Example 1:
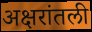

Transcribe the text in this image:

अक्षरांतली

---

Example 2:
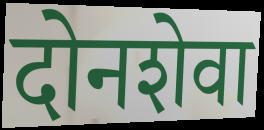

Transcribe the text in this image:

दोनशेवा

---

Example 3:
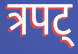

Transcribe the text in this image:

त्रपट्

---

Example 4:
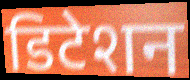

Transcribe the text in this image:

डिटेशन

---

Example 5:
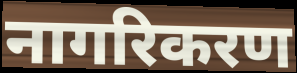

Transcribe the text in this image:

नागरिकरण